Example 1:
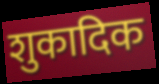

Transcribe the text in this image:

शुकादिक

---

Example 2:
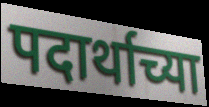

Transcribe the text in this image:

पदार्थाच्या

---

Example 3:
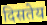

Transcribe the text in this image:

दिसतेय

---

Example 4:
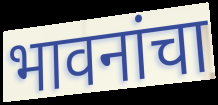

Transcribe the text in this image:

भावनांचा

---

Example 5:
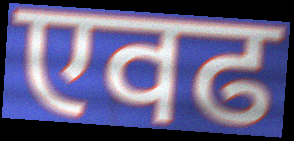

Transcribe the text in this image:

एवढ